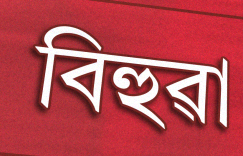
বিহুৱা